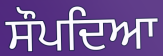
ਸੌਪਦਿਆ